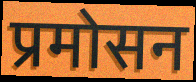
प्रमोसन